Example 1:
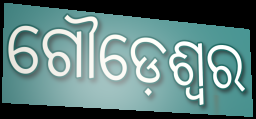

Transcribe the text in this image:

ଗୌଡ଼େଶ୍ୱର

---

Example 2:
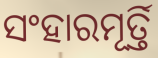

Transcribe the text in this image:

ସଂହାରମୂର୍ତ୍ତି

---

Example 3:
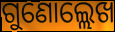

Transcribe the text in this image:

ଗୁଣୋଲ୍ଲେଖ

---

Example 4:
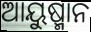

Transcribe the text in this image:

ଆୟୁଷ୍ମାନ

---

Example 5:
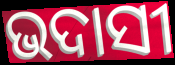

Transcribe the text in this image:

ଭଦାସୀ